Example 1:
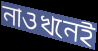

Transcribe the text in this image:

নাওখনেই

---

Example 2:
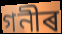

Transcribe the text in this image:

গনীৰ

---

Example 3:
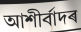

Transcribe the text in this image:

আশীৰ্বাদৰ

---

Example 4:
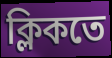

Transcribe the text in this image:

ক্লিকতে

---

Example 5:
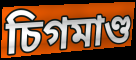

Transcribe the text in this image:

চিগমাণ্ড